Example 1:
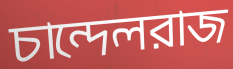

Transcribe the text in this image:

চান্দেলরাজ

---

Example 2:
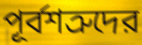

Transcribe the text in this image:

পূর্বশত্রুদের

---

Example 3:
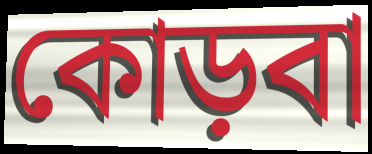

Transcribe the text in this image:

কোড়বা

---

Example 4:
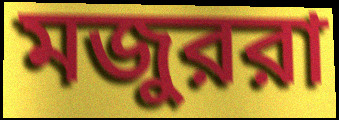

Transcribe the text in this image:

মজুররা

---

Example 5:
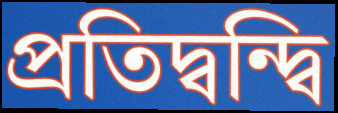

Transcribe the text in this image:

প্রতিদ্বন্দ্বি